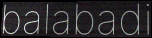
balabadi